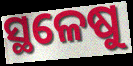
ସ୍ଥଳେଷୁ